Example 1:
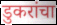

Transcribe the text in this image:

डुकरांचा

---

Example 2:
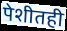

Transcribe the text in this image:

पेशीतही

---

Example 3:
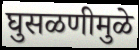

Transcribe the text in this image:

घुसळणीमुळे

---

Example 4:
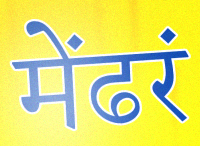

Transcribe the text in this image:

मेंढरं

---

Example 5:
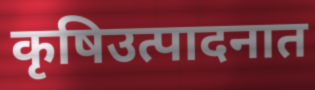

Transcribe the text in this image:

कृषिउत्पादनात